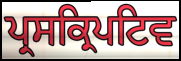
ਪ੍ਰਸਕ੍ਰਿਪਟਿਵ